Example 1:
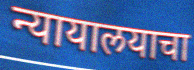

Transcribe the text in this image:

न्यायालयाचा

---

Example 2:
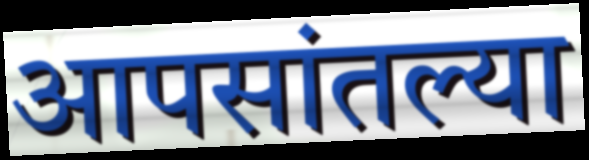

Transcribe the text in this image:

आपसांतल्या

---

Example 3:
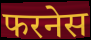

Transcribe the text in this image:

फरनेस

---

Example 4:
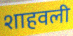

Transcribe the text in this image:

शाहवली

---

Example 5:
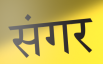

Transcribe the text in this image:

संगर